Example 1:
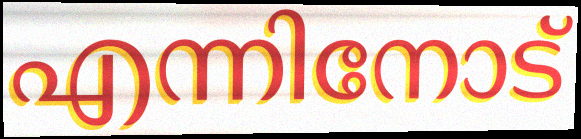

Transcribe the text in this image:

എന്നിനോട്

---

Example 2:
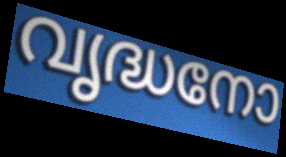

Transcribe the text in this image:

വൃദ്ധനോ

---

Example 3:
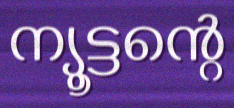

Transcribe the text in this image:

ന്യൂട്ടന്റെ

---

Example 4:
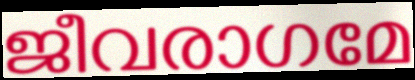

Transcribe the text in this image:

ജീവരാഗമേ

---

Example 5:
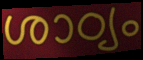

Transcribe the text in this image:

ശാഠ്യം